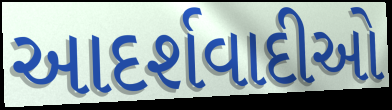
આદર્શવાદીઓ